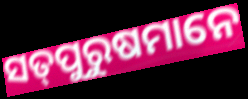
ସତ୍‌ପୁରୁଷମାନେ